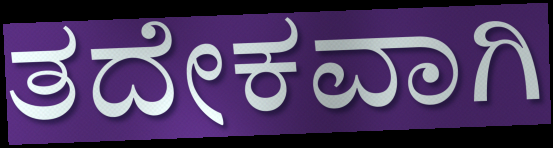
ತದೇಕವಾಗಿ